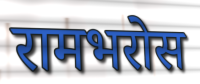
रामभरोस